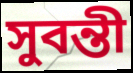
সুবন্তী